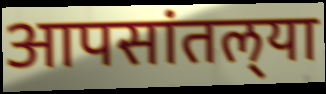
आपसांतल्या